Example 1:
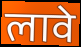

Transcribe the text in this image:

लावे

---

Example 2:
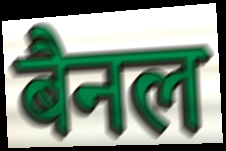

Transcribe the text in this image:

बैनल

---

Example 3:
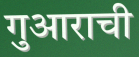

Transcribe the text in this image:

गुआराची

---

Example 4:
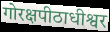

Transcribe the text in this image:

गोरक्षपीठाधीश्वर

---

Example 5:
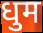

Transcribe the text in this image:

धुम